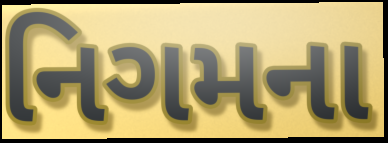
નિગમના